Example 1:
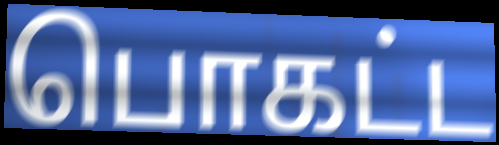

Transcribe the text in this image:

பொகட்ட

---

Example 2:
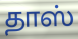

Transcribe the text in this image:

தாஸ்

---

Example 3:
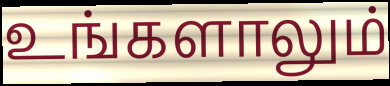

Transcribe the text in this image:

உங்களாலும்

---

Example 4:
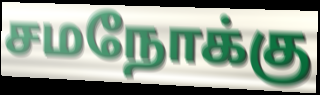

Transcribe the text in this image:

சமநோக்கு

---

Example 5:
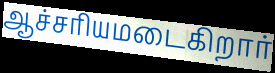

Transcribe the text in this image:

ஆச்சரியமடைகிறார்